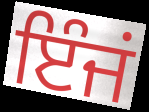
ਇੰਜਂ